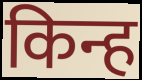
किन्ह